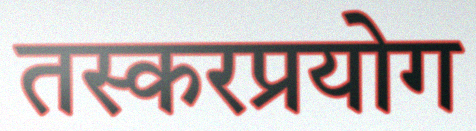
तस्करप्रयोग